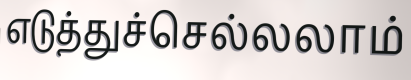
எடுத்துச்செல்லலாம்